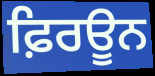
ਫ਼ਿਰਊਨ